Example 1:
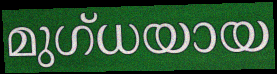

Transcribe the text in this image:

മുഗ്ധയായ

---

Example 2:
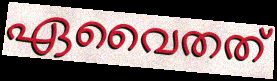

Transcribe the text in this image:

ഏവൈതത്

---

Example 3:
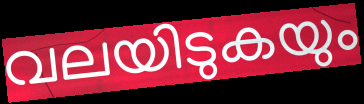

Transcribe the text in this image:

വലയിടുകയും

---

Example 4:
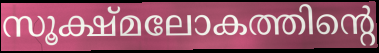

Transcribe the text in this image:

സൂക്ഷ്മലോകത്തിന്റെ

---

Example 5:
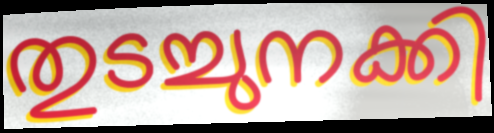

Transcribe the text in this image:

തുടച്ചുനക്കി